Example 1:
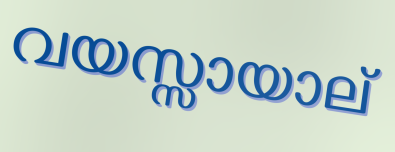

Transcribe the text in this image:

വയസ്സായാല്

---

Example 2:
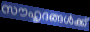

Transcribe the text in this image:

സൗഹൃദങ്ങൾക്ക്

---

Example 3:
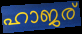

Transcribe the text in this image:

ഹാജര്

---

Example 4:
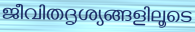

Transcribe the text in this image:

ജീവിതദൃശ്യങ്ങളിലൂടെ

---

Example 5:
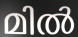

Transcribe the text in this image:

മിൽ